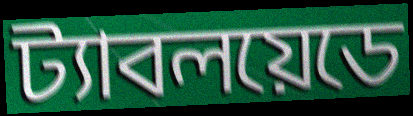
ট্যাবলয়েডে